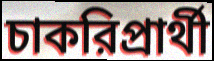
চাকরিপ্রার্থী